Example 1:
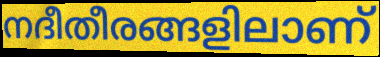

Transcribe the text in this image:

നദീതീരങ്ങളിലാണ്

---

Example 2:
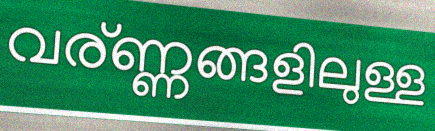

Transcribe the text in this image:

വര്ണ്ണങ്ങളിലുള്ള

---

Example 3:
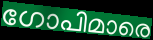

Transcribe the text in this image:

ഗോപിമാരെ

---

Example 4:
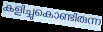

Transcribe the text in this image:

കളിച്ചുകൊണ്ടിരുന്ന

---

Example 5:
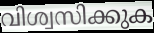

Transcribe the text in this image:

വിശ്വസിക്കുക